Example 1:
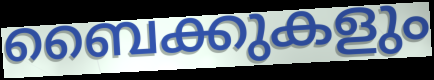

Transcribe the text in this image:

ബൈക്കുകളും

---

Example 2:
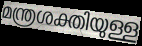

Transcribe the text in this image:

മന്ത്രശക്തിയുള്ള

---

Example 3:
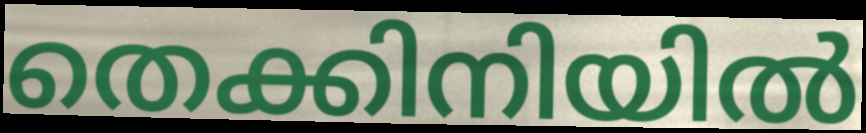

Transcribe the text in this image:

തെക്കിനിയിൽ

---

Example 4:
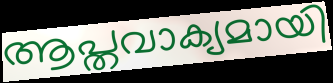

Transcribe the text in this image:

ആപ്തവാക്യമായി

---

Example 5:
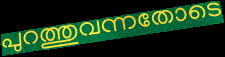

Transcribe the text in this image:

പുറത്തുവന്നതോടെ